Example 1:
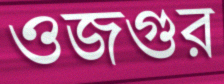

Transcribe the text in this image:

ওজগুর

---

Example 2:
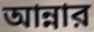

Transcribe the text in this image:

আন্নার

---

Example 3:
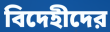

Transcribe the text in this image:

বিদেহীদের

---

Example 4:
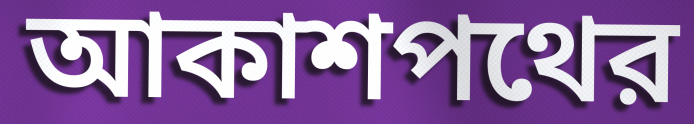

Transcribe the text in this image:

আকাশপথের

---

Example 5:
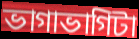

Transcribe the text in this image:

ভাগাভাগিটা